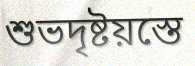
শুভদৃষ্টয়স্তে